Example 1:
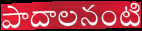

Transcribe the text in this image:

పాదాలనంటి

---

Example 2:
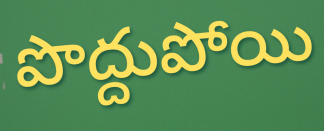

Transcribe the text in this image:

పొద్దుపోయి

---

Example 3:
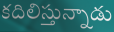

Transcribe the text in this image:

కదిలిస్తున్నాడు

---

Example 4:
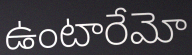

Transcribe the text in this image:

ఉంటారేమో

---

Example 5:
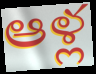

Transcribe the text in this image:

ఆళ్ల